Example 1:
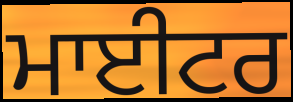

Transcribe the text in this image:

ਮਾਈਟਰ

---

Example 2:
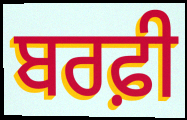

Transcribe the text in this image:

ਬਰਫ਼ੀ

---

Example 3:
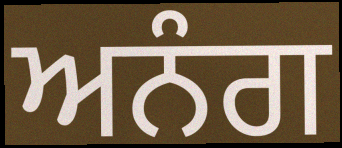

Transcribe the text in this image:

ਅਨੰਗ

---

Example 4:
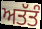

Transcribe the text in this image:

ਅਤੱਤੰ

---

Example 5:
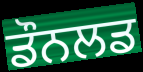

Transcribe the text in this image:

ਡੌਨਲਡ